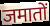
जमातों